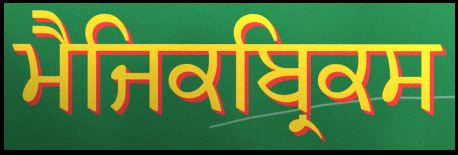
ਮੈਜਿਕਬ੍ਰਿਕਸ